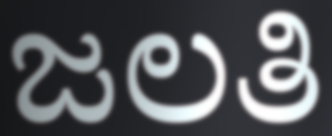
ಜಲತಿ